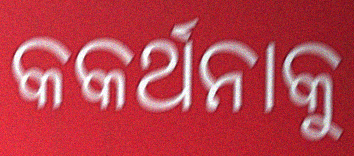
କକର୍ଥନାକୁ